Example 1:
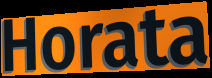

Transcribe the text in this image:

Horata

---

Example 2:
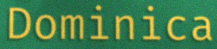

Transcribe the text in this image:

Dominica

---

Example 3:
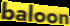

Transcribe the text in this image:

baloon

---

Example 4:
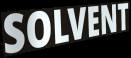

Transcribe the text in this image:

SOLVENT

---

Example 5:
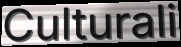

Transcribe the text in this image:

Culturali